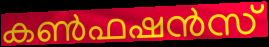
കൺഫഷൻസ്